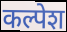
कल्पेश